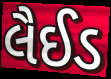
લૈઈડ